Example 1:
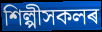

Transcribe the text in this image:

শিল্পীসকলৰ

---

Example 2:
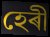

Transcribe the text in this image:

হেৰী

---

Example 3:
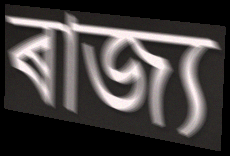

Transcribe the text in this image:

ৰাজ্য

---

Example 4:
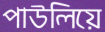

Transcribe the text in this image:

পাউলিয়ে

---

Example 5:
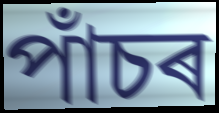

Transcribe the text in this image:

পাঁচৰ